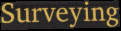
Surveying